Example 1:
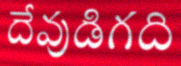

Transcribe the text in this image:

దేవుడిగది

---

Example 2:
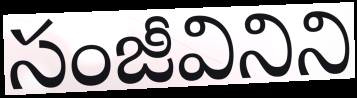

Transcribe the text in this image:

సంజీవినిని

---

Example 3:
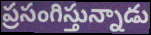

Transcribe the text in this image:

ప్రసంగిస్తున్నాడు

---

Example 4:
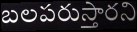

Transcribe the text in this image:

బలపరుస్తారని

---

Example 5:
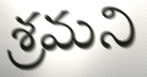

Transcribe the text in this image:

శ్రమని